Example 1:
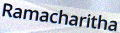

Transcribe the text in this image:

Ramacharitha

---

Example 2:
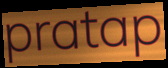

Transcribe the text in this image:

pratap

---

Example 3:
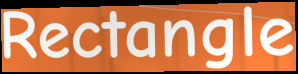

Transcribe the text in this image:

Rectangle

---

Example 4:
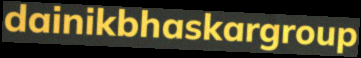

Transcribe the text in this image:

dainikbhaskargroup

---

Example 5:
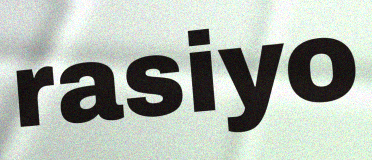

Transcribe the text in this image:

rasiyo